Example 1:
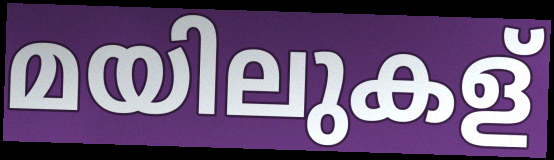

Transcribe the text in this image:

മയിലുകള്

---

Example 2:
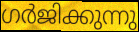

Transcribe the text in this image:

ഗർജിക്കുന്നു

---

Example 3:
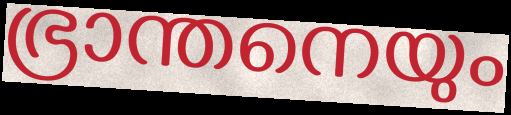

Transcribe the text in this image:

ഭ്രാന്തനെയും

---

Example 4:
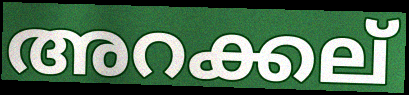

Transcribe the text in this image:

അറക്കല്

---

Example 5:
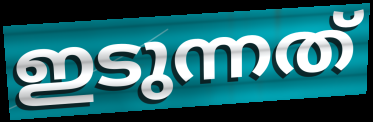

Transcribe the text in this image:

ഇടുന്നത്